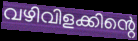
വഴിവിളക്കിന്റെ